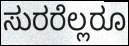
ಸುರರೆಲ್ಲರೂ